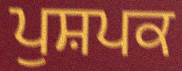
ਪੁਸ਼ਪਕ